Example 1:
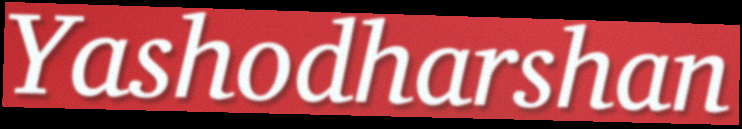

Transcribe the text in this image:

Yashodharshan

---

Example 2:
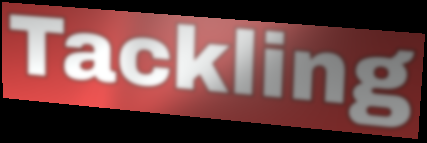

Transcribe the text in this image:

Tackling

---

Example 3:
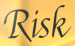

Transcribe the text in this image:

Risk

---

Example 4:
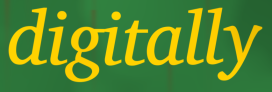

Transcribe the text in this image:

digitally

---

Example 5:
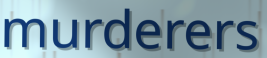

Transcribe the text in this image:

murderers